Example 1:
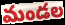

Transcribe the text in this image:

మండల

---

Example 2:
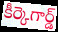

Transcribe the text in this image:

కీర్కెగార్డ్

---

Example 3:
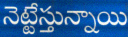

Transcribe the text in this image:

నెట్టేస్తున్నాయి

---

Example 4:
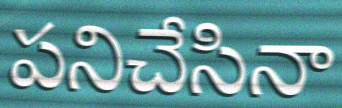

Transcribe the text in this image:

పనిచేసినా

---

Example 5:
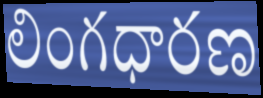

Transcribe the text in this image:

లింగధారణ